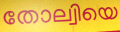
തോല്വിയെ